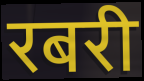
रबरी